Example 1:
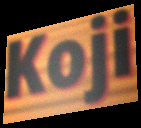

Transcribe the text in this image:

Koji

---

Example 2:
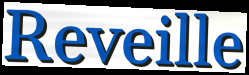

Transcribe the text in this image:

Reveille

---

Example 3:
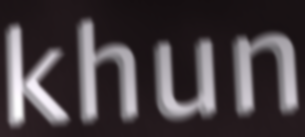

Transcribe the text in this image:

khun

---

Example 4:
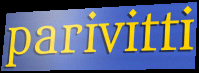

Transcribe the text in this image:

parivitti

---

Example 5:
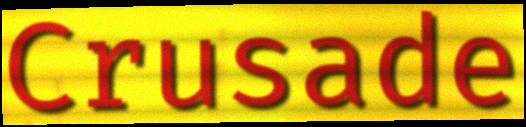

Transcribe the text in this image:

Crusade